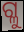
ଗ୍ଳୁ